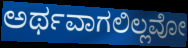
ಅರ್ಥವಾಗಲಿಲ್ಲವೋ